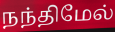
நந்திமேல்